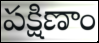
పక్షిణాం